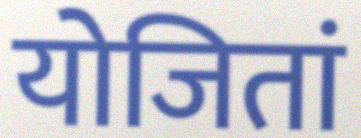
योजितां